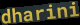
dharini